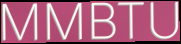
MMBTU